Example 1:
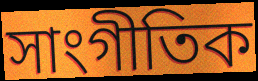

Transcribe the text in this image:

সাংগীতিক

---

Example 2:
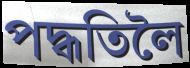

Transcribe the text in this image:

পদ্ধতিলৈ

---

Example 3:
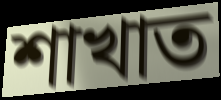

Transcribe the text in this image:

শাখাত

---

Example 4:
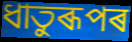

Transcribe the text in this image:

ধাতুৰূপৰ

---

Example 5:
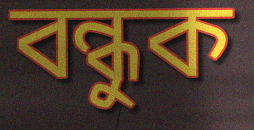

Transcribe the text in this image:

বন্ধুক